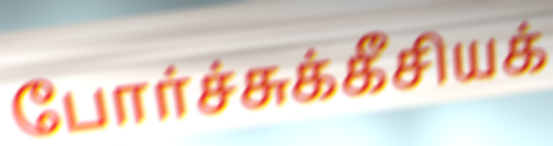
போர்ச்சுக்கீசியக்